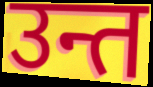
उन्त